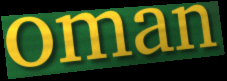
oman